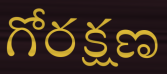
గోరక్షణ